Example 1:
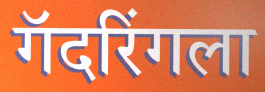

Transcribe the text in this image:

गॅदरिंगला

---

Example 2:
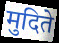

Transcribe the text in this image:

मुदिते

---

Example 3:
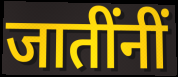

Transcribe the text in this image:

जातींनीं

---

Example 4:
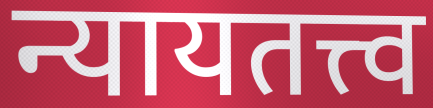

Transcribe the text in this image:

न्यायतत्त्व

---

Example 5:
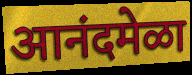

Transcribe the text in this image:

आनंदमेळा